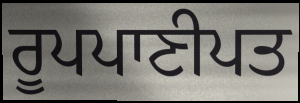
ਰੂਪਪਾਣੀਪਤ